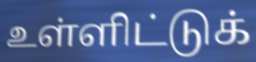
உள்ளிட்டுக்